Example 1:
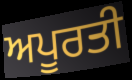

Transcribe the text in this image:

ਅਪੂਰਤੀ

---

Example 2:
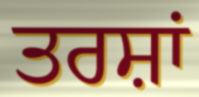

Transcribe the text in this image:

ਤਰਸ਼ਾਂ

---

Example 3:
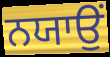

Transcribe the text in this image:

ਨਯਾਉਂ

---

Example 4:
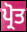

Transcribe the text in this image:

ਪ੍ਰੋਤ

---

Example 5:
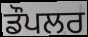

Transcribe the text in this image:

ਡੌਪਲਰ